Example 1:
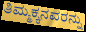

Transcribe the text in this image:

ತಿಮ್ಮಕ್ಕನವರನ್ನು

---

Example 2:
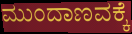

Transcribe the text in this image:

ಮುಂದಾಣವಕ್ಕೆ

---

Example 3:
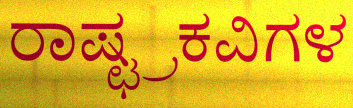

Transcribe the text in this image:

ರಾಷ್ಟ್ರಕವಿಗಳ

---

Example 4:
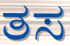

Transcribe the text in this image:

ತಸ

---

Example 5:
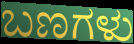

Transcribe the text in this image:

ಬಣಗಳು